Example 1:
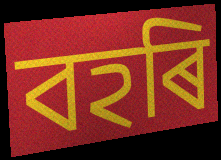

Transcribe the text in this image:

বহৰি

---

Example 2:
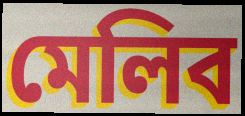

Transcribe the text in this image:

মেলিব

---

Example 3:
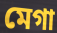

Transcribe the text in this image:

মেগা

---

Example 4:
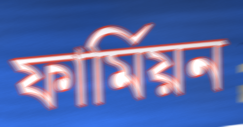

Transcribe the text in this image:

ফাৰ্মিয়ন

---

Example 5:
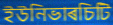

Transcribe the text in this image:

ইউনিভাৰচিটি